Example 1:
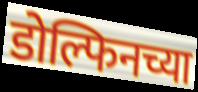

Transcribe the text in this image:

डोल्फिनच्या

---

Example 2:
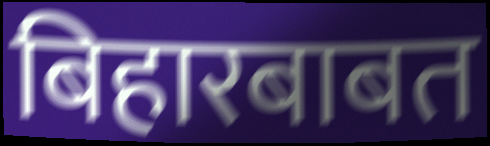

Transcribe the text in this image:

बिहारबाबत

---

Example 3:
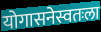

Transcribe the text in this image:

योगासनेस्वतःला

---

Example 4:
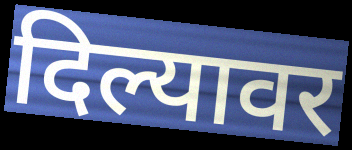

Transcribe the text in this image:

दिल्यावर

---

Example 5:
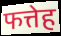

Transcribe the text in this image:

फत्तेह